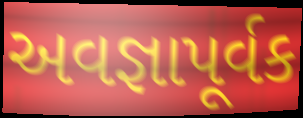
અવજ્ઞાપૂર્વક